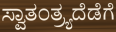
ಸ್ವಾತಂತ್ರ್ಯದೆಡೆಗೆ